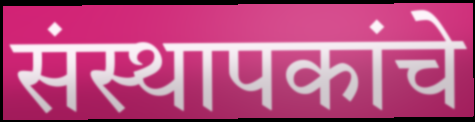
संस्थापकांचे